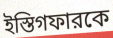
ইস্তিগফারকে